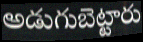
అడుగుబెట్టారు